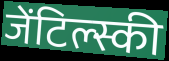
जेंटिल्स्की